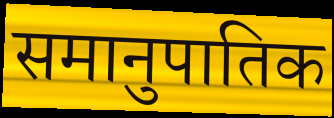
समानुपातिक